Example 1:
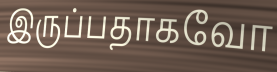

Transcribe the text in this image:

இருப்பதாகவோ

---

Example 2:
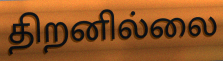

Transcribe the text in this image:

திறனில்லை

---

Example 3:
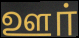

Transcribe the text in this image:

ஊர்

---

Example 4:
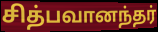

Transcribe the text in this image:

சித்பவானந்தர்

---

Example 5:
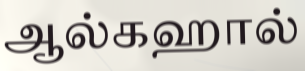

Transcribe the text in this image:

ஆல்கஹால்